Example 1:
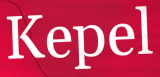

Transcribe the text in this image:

Kepel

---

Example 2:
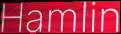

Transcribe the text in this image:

Hamlin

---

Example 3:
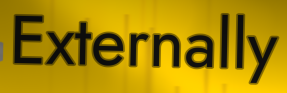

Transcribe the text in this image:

Externally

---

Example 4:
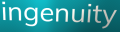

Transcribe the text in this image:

ingenuity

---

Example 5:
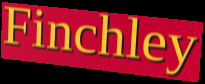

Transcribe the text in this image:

Finchley